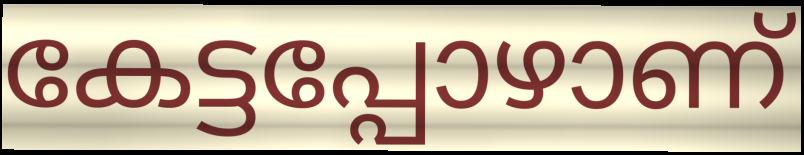
കേട്ടപ്പോഴാണ്